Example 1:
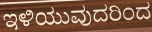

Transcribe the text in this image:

ಇಳಿಯುವುದರಿಂದ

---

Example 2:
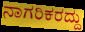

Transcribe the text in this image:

ನಾಗರಿಕರದ್ದು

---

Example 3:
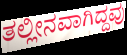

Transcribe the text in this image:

ತಲ್ಲೀನವಾಗಿದ್ದವು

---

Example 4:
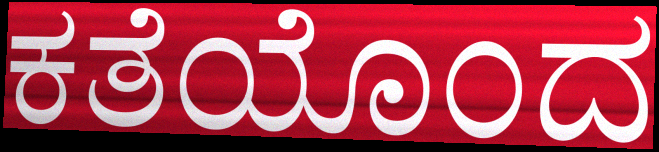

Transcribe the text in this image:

ಕತೆಯೊಂದ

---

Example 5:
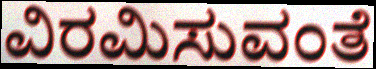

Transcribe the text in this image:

ವಿರಮಿಸುವಂತೆ